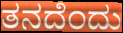
ತನದೆಂದು